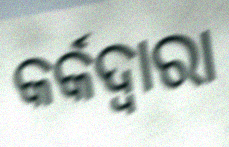
କର୍କଦ୍ଵାରା